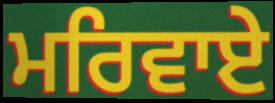
ਮਰਿਵਾਏ